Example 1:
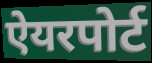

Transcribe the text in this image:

ऐयरपोर्ट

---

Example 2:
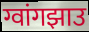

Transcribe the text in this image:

ग्वांगझाउ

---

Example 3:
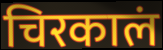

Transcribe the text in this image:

चिरकालं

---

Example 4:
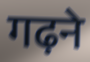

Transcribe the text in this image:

गढ़ने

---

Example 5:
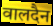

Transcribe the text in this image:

वालदैन